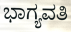
ಭಾಗ್ಯವತಿ